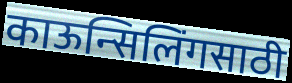
काऊन्सिलिंगसाठी